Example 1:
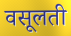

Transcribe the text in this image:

वसूलती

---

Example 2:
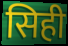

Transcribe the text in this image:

सिही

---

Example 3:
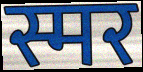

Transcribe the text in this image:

स्मर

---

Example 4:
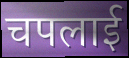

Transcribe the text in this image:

चपलाई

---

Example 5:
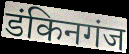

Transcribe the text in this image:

डंकिनगंज